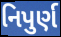
નિપુર્ણ